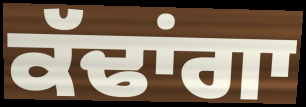
ਕੱਢਾਂਗਾ